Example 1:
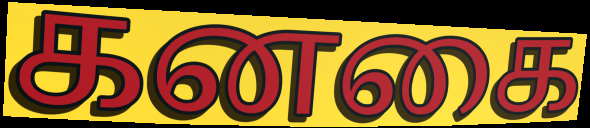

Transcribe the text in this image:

கனகை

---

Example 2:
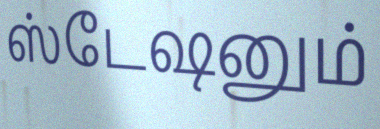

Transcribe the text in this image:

ஸ்டேஷனும்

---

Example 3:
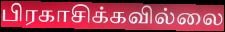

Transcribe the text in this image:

பிரகாசிக்கவில்லை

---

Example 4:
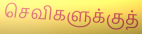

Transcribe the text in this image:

செவிகளுக்குத்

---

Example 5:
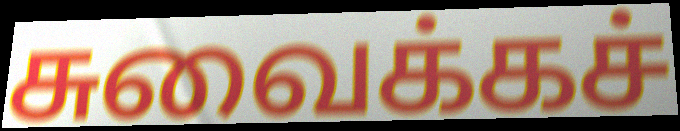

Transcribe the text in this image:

சுவைக்கச்